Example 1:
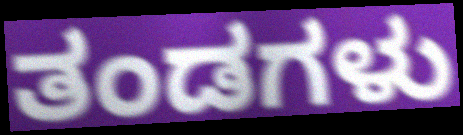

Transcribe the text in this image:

ತಂಡಗಳು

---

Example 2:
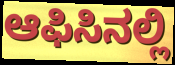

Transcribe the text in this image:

ಆಫಿಸಿನಲ್ಲಿ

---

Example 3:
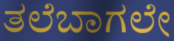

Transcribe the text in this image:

ತಲೆಬಾಗಲೇ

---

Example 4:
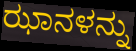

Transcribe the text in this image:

ಝಾನಳನ್ನು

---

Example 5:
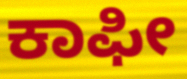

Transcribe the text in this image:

ಕಾಫೀ